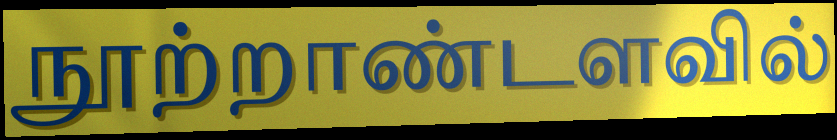
நூற்றாண்டளவில்